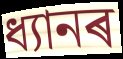
ধ্যানৰ